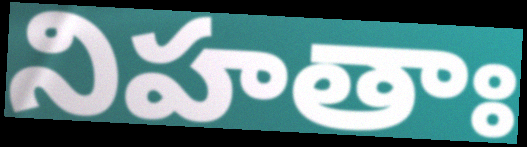
నిహతాః